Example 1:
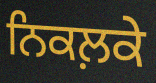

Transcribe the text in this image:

ਨਿਕਲ਼ਕੇ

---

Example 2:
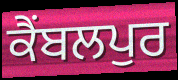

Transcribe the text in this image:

ਕੈਂਬਲਪੁਰ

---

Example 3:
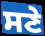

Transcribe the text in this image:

ਸਣੇ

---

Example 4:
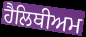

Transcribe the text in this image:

ਹੈਲਿਥੀਅਮ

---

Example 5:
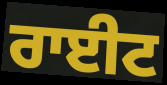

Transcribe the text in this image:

ਰਾਈਟ